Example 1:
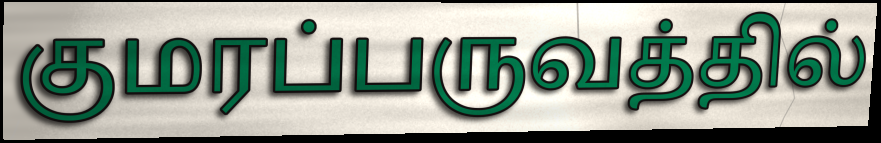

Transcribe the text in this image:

குமரப்பருவத்தில்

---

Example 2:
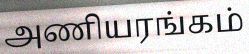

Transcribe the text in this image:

அணியரங்கம்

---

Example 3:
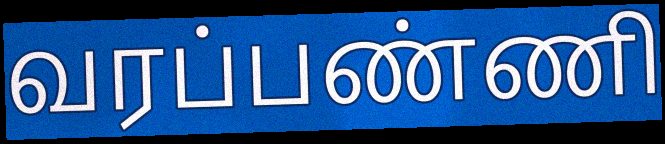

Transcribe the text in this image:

வரப்பண்ணி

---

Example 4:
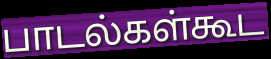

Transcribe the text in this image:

பாடல்கள்கூட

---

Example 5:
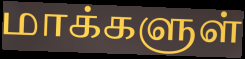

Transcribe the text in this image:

மாக்களுள்